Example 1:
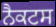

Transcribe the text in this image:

ਨੈਕਟਸ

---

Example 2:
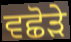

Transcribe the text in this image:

ਵਛੋੜੇ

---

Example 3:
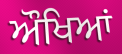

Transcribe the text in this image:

ਔਖਿਆਂ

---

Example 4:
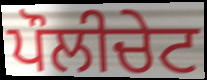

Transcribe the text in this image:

ਪੌਲੀਚੇਟ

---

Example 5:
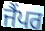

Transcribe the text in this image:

ਜੈਂਪਰ